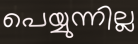
പെയ്യുന്നില്ല